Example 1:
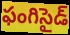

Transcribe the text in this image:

ఫంగిసైడ్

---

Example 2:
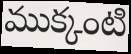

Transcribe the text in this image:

ముక్కంటి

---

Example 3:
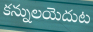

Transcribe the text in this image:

కన్నులయెదుట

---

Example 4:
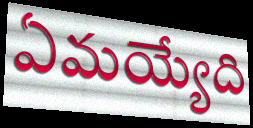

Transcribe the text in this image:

ఏమయ్యేది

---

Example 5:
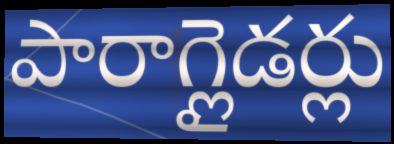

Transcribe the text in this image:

పారాగ్లైడర్లు